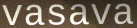
vasava